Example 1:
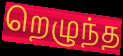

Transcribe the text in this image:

றெழுந்த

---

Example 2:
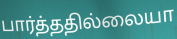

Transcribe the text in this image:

பார்த்ததில்லையா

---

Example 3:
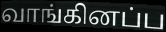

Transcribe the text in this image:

வாங்கினப்ப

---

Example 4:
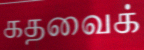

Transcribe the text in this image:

கதவைக்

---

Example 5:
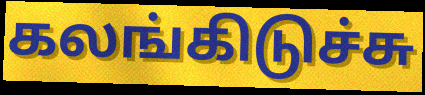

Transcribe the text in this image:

கலங்கிடுச்சு